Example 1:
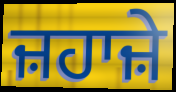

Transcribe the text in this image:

ਜ਼ਹਾਜ਼ੇ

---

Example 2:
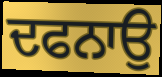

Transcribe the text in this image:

ਦਫਨਾਉ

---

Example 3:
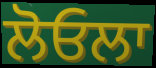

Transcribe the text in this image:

ਲੋਓਲਾ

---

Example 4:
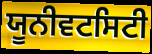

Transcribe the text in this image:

ਯੂਨੀਵਟਸਿਟੀ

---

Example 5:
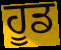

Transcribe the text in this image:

ਹੂਡ